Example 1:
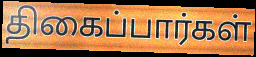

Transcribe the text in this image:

திகைப்பார்கள்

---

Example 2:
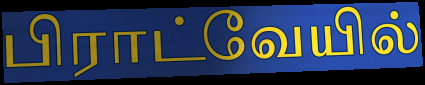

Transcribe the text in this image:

பிராட்வேயில்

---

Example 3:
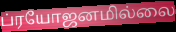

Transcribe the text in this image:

ப்ரயோஜனமில்லை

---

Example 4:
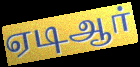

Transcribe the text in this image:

ஏடிஆர்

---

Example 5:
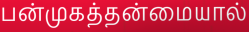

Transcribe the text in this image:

பன்முகத்தன்மையால்